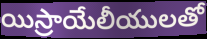
యిస్రాయేలీయులతో